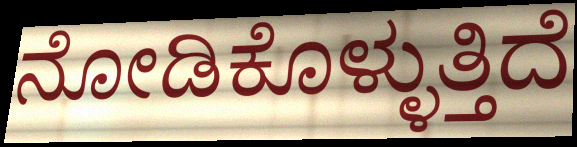
ನೋಡಿಕೊಳ್ಳುತ್ತಿದೆ